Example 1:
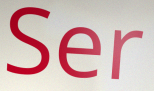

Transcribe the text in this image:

Ser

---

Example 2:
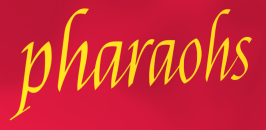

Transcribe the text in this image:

pharaohs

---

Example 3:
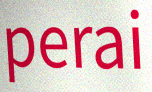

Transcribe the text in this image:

perai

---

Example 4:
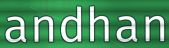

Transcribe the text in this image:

andhan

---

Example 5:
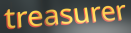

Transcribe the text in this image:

treasurer